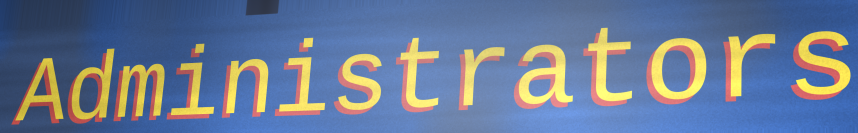
Administrators